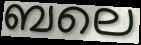
ബലെ